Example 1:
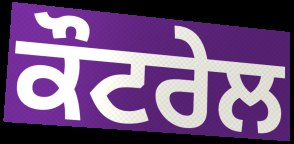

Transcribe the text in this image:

ਕੌਟਰੇਲ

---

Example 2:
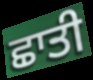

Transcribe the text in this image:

ਛਾਤੀ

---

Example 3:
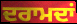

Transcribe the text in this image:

ਦਰਾਮਦਾਂ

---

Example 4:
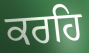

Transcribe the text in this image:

ਕਰਹਿ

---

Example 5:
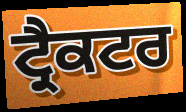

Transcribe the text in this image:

ਟ੍ਰੈਕਟਰ